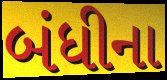
બંધીના